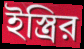
ইস্ত্রির